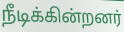
நீடிக்கின்றனர்